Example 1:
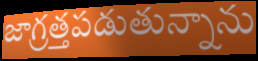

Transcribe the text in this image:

జాగ్రత్తపడుతున్నాను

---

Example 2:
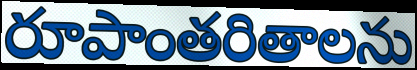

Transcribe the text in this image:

రూపాంతరితాలను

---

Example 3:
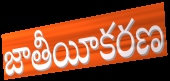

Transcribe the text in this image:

జాతీయీకరణ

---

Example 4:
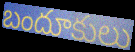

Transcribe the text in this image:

బందూకులు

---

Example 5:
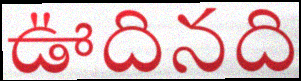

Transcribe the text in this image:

ఊదినది